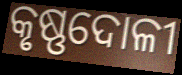
କୃଷ୍ଣଦୋଳୀ